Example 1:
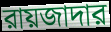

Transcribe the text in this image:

রায়জাদার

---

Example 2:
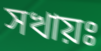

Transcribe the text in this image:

সখায়ঃ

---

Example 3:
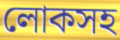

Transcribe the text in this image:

লোকসহ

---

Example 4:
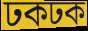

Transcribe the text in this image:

ঢকঢক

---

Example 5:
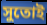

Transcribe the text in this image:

সুতোই